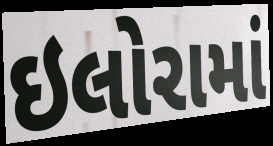
ઇલોરામાં